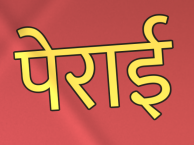
पेराई